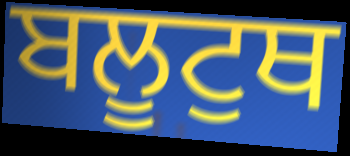
ਬਲੂਟੁਥ